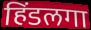
हिंडलगा